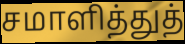
சமாளித்துத்